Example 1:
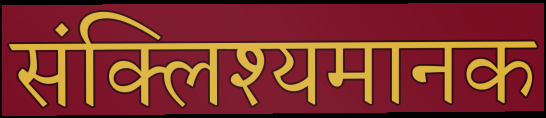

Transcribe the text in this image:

संक्लिश्यमानक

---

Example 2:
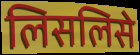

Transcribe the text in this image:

लिसलिसे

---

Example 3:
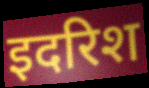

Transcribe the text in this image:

इदरिश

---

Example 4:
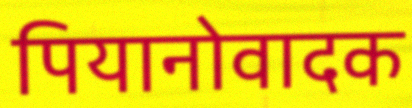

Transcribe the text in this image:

पियानोवादक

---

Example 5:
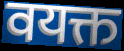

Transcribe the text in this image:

वयक्त